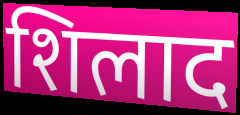
शिलाद